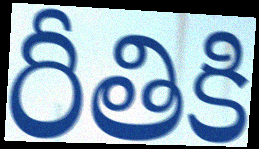
రీతికి